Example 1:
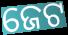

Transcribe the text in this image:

ଜେଟ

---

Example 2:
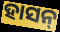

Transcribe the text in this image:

ହାସନ୍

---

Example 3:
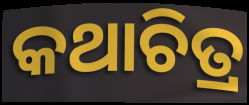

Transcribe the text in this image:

କଥାଚିତ୍ର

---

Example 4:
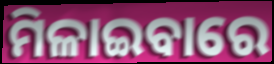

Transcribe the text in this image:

ମିଳାଇବାରେ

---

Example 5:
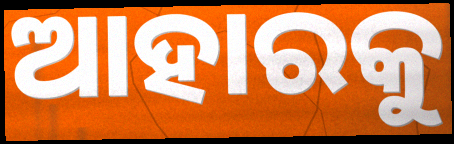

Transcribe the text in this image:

ଆହାରକୁ